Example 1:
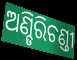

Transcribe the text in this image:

ଅଣ୍ଡିରିଚଣ୍ଡୀ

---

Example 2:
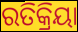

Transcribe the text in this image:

ରତିକ୍ରିୟା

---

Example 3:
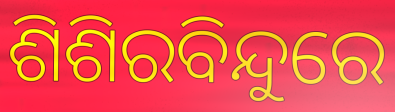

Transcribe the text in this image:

ଶିଶିରବିନ୍ଦୁରେ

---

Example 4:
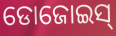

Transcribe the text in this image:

ଡୋଜୋଇସ୍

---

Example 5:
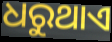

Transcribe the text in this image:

ଧରୁଥାଏ